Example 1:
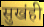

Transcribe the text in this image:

सुखंही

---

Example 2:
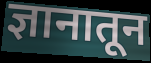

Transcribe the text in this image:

ज्ञानातून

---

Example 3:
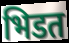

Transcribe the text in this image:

भिडत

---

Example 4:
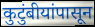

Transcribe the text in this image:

कुटुंबीयांपासून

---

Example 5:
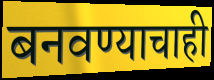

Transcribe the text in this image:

बनवण्याचाही